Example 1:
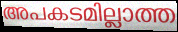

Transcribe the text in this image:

അപകടമില്ലാത്ത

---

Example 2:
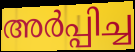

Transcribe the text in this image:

അർപ്പിച്ച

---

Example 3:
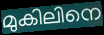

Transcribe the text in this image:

മുകിലിനെ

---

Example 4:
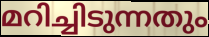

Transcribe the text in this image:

മറിച്ചിടുന്നതും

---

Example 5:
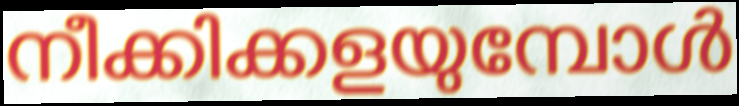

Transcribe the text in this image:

നീക്കിക്കളയുമ്പോൾ